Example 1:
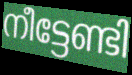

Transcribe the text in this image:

നീട്ടേണ്ടി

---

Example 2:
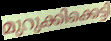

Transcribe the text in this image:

മുറുക്കിക്കെട്ടി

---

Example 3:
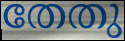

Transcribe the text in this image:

തേതു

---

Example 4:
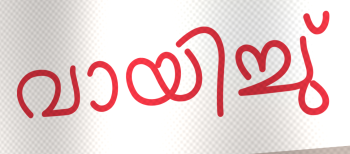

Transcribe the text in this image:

വായിച്ചു്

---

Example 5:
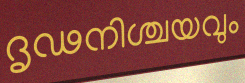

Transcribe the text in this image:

ദൃഢനിശ്ചയവും